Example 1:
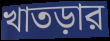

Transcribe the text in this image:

খাতড়ার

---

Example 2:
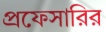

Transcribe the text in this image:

প্রফেসারির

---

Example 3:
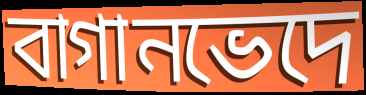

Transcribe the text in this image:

বাগানভেদে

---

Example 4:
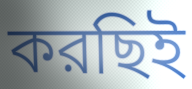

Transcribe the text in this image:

করছিই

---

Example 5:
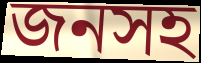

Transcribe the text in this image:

জনসহ